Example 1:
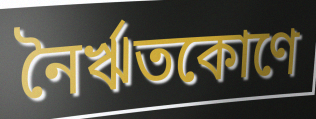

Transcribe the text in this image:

নৈর্ঋতকোণে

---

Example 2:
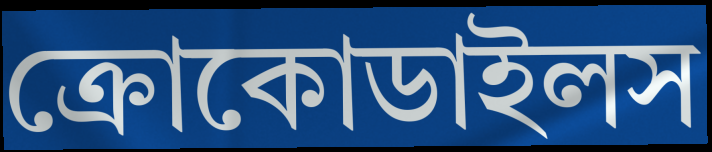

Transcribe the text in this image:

ক্রোকোডাইলস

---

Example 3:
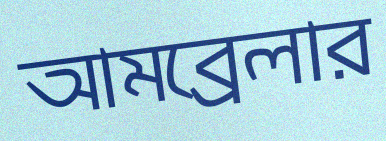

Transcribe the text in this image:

আমব্রেলার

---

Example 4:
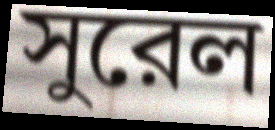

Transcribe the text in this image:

সুরেল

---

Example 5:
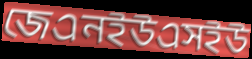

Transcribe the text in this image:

জেএনইউএসইউ